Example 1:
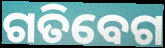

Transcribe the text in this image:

ଗତିବେଗ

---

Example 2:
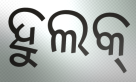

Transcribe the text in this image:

ହୁଲକ୍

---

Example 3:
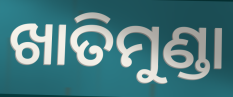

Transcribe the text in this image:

ଖାତିମୁଣ୍ଡା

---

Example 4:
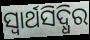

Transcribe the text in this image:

ସ୍ଵାର୍ଥସିଦ୍ଧିର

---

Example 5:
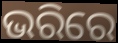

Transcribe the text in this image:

ଭରିରେ